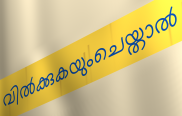
വിൽക്കുകയുംചെയ്താൽ